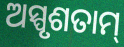
ଅସ୍ପୃଶତାମ୍